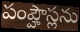
పంప్హౌస్లను